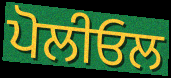
ਪੋਲੀਓਲ